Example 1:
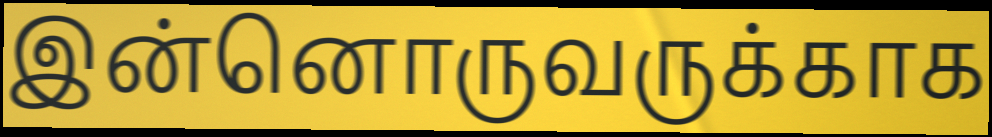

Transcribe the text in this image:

இன்னொருவருக்காக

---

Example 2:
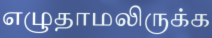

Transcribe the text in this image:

எழுதாமலிருக்க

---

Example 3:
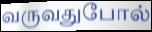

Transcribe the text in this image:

வருவதுபோல்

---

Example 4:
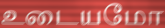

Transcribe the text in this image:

உடையமோ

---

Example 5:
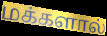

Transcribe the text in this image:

மக்களால்